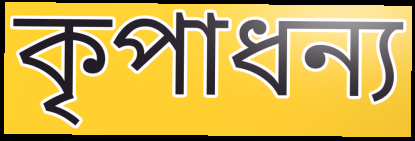
কৃপাধন্য